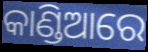
କାଣ୍ଡିଆରେ